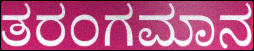
ತರಂಗಮಾನ